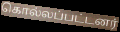
கொல்லப்பட்டனர்